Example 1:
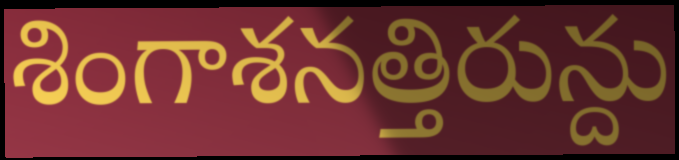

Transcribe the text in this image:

శింగాశనత్తిరున్దు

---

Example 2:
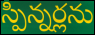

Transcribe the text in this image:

స్పిన్నర్లను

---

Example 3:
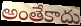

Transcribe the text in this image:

అంతేకాదు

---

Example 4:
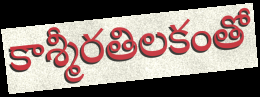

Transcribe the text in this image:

కాశ్మీరతిలకంతో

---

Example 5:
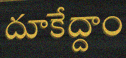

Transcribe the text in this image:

దూకేద్దాం